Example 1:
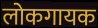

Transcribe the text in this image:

लोकगायक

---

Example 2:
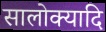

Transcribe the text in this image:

सालोक्यादि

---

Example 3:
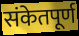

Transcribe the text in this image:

संकेतपूर्ण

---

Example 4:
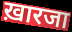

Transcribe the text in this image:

ख़ारजा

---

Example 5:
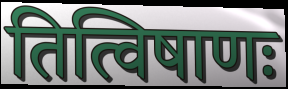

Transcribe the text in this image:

तित्विषाणः